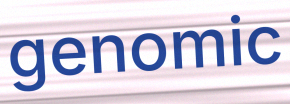
genomic